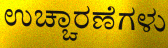
ಉಚ್ಚಾರಣೆಗಳು